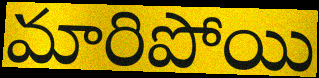
మారిపోయి